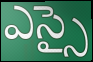
ఎస్సై